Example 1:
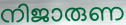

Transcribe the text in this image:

നിജാരുണ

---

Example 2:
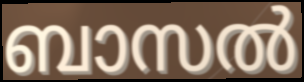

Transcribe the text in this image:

ബാസൽ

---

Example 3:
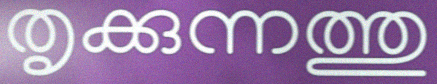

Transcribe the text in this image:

തൃക്കുന്നത്തു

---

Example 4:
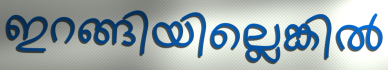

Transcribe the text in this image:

ഇറങ്ങിയില്ലെങ്കിൽ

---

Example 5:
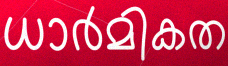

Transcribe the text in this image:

ധാർമികത